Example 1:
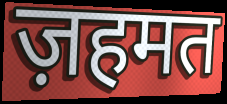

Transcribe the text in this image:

ज़हमत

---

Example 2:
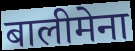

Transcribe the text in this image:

बालीमेना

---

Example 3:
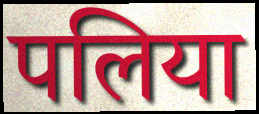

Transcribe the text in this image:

पलिया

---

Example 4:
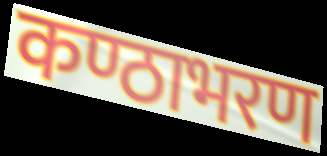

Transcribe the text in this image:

कण्ठाभरण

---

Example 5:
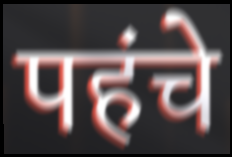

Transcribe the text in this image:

पहंचे